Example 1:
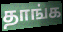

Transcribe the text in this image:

தாங்க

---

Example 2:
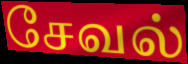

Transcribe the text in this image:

சேவல்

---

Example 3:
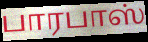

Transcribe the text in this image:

பாரபாஸ்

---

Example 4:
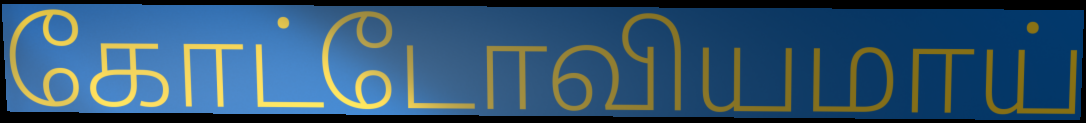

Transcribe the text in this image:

கோட்டோவியமாய்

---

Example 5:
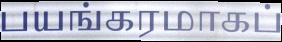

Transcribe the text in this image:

பயங்கரமாகப்